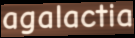
agalactia